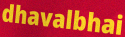
dhavalbhai